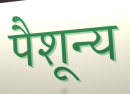
पैशून्य